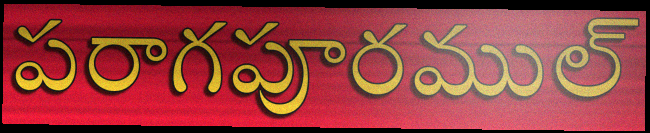
పరాగపూరముల్